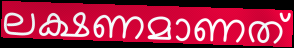
ലക്ഷണമാണത്